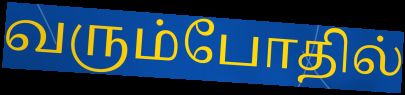
வரும்போதில்